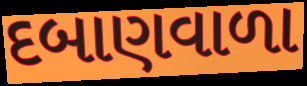
દબાણવાળા